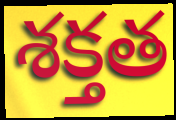
శక్తత